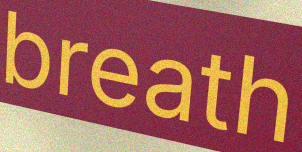
breath